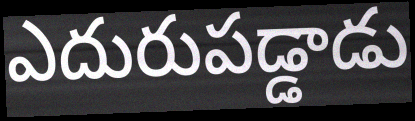
ఎదురుపడ్డాడు